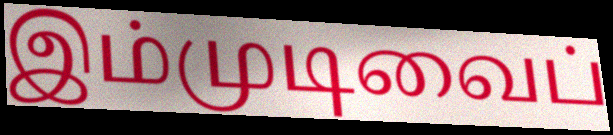
இம்முடிவைப்